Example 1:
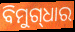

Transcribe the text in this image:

ବିମୁଗ୍‌ଧାର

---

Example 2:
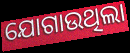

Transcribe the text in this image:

ଯୋଗାଉଥିଲା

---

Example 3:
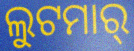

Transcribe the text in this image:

ଲୁଟମାର୍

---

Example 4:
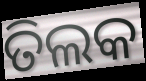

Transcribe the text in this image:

ତିଲକ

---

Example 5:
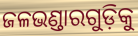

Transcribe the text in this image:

ଜଳଭଣ୍ଡାରଗୁଡ଼ିକୁ